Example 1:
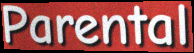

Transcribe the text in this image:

Parental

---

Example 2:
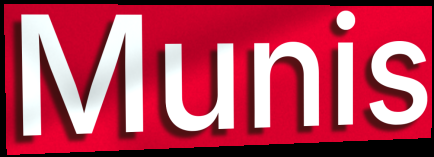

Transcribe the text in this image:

Munis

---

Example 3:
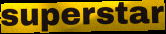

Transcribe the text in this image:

superstar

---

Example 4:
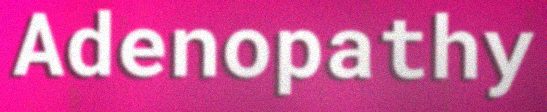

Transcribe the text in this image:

Adenopathy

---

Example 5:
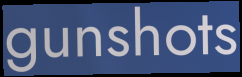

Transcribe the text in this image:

gunshots